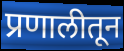
प्रणालीतून